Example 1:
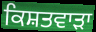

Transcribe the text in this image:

ਕਿਸ਼ਤਵਾੜਾ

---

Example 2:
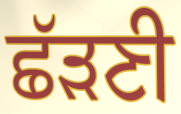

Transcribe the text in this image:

ਛੱੜਣੀ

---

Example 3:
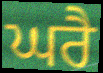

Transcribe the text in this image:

ਘਰੈ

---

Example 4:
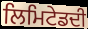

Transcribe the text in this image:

ਲਿਮਿਟੇਡਦੀ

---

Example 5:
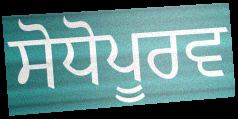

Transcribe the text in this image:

ਸੋਧੋਪੂਰਵ